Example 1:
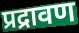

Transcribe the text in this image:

प्रद्रावण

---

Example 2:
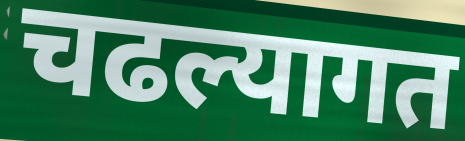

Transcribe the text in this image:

चढल्यागत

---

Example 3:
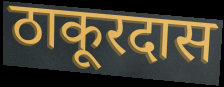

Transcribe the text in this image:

ठाकूरदास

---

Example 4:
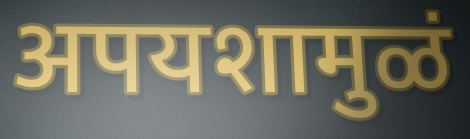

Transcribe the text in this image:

अपयशामुळं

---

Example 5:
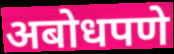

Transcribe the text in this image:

अबोधपणे